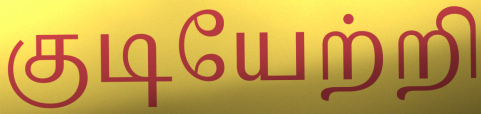
குடியேற்றி